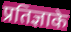
प्रतिज्ञाके